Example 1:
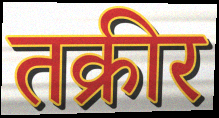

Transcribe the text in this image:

तक्रीर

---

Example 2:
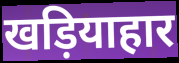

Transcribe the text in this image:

खड़ियाहार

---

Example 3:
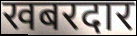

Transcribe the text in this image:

खबरदार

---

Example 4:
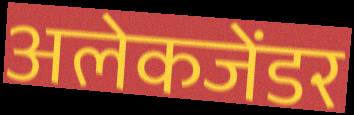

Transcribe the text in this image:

अलेकजेंडर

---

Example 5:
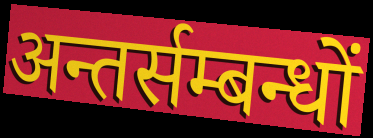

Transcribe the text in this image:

अन्तर्सम्बन्धों